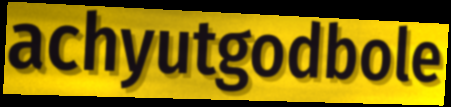
achyutgodbole